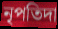
নৃপতিদা